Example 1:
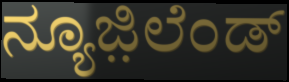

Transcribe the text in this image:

ನ್ಯೂಜ಼ಿಲೆಂಡ್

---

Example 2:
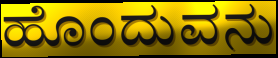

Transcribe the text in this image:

ಹೊಂದುವನು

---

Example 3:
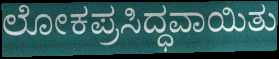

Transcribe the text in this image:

ಲೋಕಪ್ರಸಿದ್ಧವಾಯಿತು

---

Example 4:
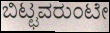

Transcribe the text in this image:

ಬಿಟ್ಟವರುಂಟೇ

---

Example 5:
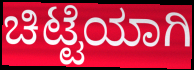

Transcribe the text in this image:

ಚಿಟ್ಟೆಯಾಗಿ